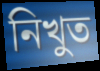
নিখুত